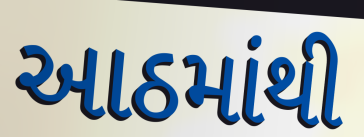
આઠમાંથી